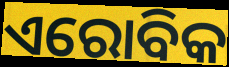
ଏରୋବିକ